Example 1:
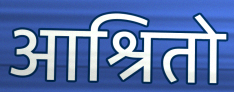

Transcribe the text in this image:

आश्रितो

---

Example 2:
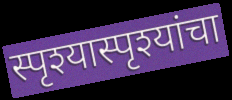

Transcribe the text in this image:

स्पृश्यास्पृश्यांचा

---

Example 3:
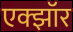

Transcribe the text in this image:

एक्झॉर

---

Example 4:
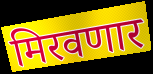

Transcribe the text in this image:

मिरवणार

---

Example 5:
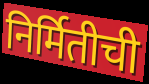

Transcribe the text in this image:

निर्मितीची